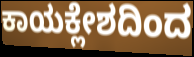
ಕಾಯಕ್ಲೇಶದಿಂದ